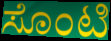
ಸೊಂಟಿ